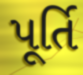
પૂર્તિ